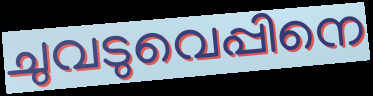
ചുവടുവെപ്പിനെ